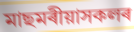
মাছমৰীয়াসকলৰ